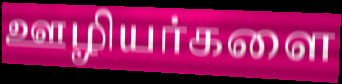
ஊழியர்களை